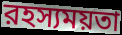
রহস্যময়তা